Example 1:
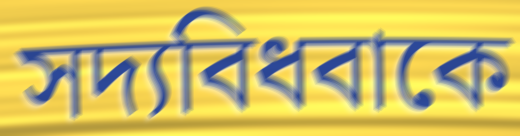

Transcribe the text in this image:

সদ্যবিধবাকে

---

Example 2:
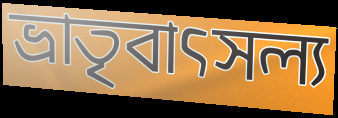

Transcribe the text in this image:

ভ্রাতৃবাৎসল্য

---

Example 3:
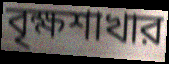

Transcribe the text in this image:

বৃক্ষশাখার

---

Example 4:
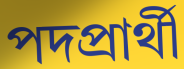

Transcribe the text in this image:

পদপ্রার্থী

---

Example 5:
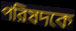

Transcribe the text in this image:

পরিষদকে